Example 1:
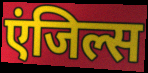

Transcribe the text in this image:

एंजिल्स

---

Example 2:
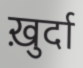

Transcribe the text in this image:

ख़ुर्दा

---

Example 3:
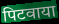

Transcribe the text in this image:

पिटवाया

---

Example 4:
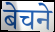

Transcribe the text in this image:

बेचने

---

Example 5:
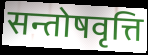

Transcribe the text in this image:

सन्तोषवृत्ति